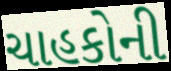
ચાહકોની